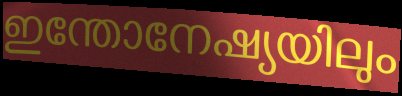
ഇന്തോനേഷ്യയിലും